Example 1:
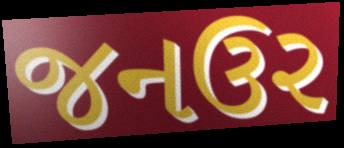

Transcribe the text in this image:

જનઉર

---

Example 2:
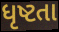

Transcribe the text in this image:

ધૃષ્ટતા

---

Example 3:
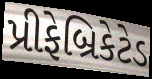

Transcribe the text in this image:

પ્રીફેબ્રિકેટેડ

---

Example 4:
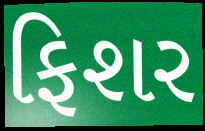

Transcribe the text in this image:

ફિશર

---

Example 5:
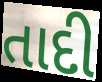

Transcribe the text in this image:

તાદી